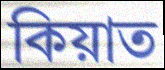
কিয়াত